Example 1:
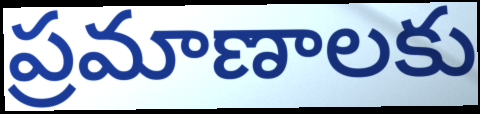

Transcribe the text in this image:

ప్రమాణాలకు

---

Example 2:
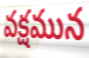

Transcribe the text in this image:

వక్షమున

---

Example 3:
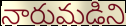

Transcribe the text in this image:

నారుమడిని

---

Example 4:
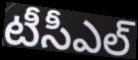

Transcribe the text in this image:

టీసీఎల్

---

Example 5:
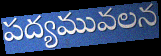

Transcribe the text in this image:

పద్యమువలన